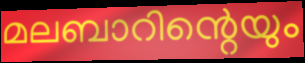
മലബാറിന്റെയും